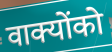
वाक्योंको